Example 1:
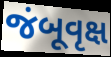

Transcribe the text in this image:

જંબૂવૃક્ષ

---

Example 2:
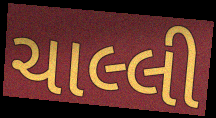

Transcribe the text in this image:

ચાલ્લી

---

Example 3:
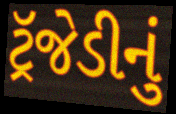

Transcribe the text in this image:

ટ્રૅજેડીનું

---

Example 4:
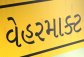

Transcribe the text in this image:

વેહરમાક્ટ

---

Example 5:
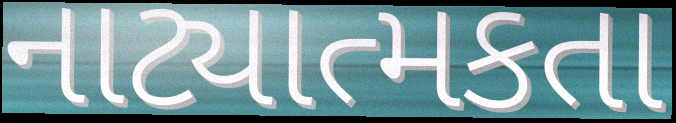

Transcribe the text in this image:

નાટ્યાત્મકતા